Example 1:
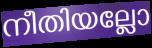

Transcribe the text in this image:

നീതിയല്ലോ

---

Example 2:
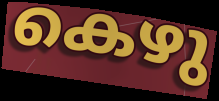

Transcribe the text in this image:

കെഴു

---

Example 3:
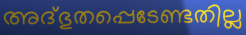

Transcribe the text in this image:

അദ്ഭുതപ്പെടേണ്ടതില്ല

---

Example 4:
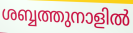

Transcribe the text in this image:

ശബ്ബത്തുനാളിൽ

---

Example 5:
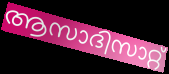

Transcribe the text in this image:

ആസാദിസാറ്റ്